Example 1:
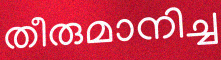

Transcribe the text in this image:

തീരുമാനിച്ച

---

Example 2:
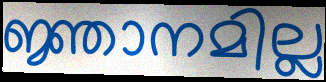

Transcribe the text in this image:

ജ്ഞാനമില്ല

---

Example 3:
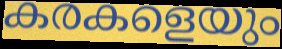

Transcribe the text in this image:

കരകളെയും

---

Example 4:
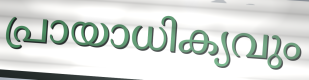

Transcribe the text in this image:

പ്രായാധിക്യവും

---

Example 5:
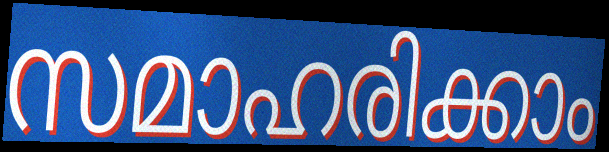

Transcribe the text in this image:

സമാഹരിക്കാം